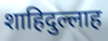
शाहिदुल्लाह